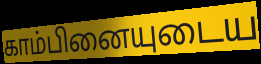
காம்பினையுடைய